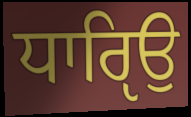
ਧਾਰੵਿਉ